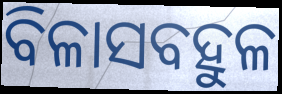
ବିଳାସବହୁଳ